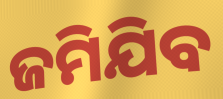
ଜମିଯିବ